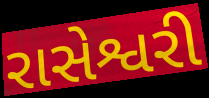
રાસેશ્વરી